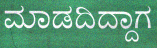
ಮಾಡದಿದ್ದಾಗ